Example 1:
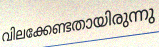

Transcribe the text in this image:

വിലക്കേണ്ടതായിരുന്നു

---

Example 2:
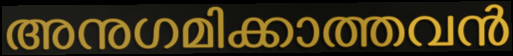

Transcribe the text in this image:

അനുഗമിക്കാത്തവൻ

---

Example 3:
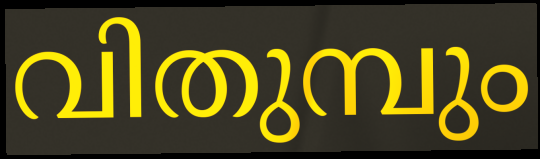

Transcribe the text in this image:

വിതുമ്പും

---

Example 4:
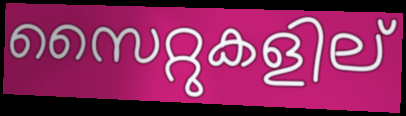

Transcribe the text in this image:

സൈറ്റുകളില്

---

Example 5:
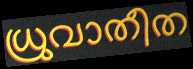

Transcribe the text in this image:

ധ്രുവാതീത